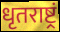
धृतराष्ट्रं